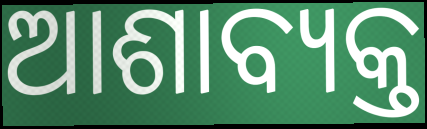
ଆଶାବ୍ୟକ୍ତ